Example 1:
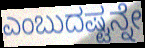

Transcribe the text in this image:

ಎಂಬುದಷ್ಟನ್ನೇ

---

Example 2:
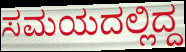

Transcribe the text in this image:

ಸಮಯದಲ್ಲಿದ್ದ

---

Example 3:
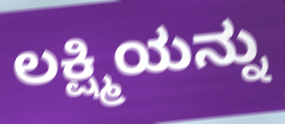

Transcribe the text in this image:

ಲಕ್ಷ್ಮಿಯನ್ನು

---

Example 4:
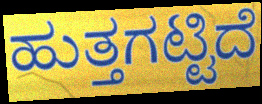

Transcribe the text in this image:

ಹುತ್ತಗಟ್ಟಿದೆ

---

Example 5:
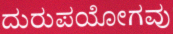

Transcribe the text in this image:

ದುರುಪಯೋಗವು